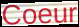
Coeur